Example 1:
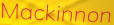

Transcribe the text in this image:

Mackinnon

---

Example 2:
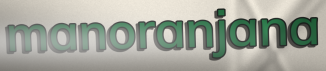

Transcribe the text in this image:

manoranjana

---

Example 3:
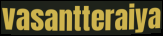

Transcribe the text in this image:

vasantteraiya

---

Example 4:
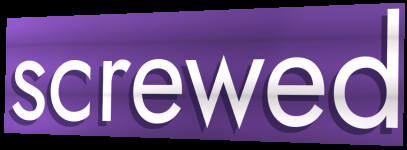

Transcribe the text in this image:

screwed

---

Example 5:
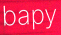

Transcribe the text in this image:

bapy